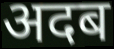
अदब